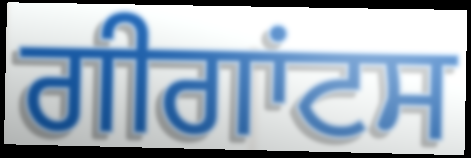
ਗੀਗਾਂਟਸ